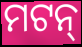
ମଟନ୍